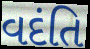
વદંતિ